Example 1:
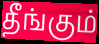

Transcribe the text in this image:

தீங்கும்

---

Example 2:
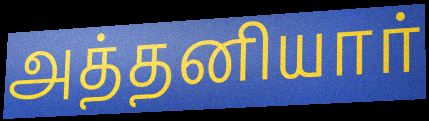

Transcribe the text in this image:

அத்தனியார்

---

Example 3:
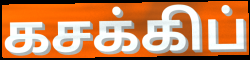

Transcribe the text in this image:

கசக்கிப்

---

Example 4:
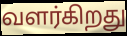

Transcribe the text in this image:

வளர்கிறது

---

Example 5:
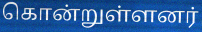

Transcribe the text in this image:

கொன்றுள்ளனர்